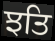
ਝਤਿ